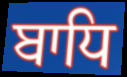
ਬਾਧਿ